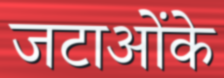
जटाओंके